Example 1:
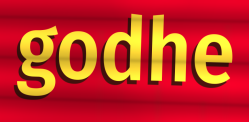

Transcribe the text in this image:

godhe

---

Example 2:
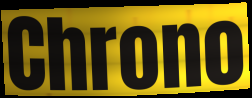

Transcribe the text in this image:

Chrono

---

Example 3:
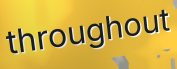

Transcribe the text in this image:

throughout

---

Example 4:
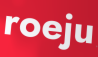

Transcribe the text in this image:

roeju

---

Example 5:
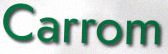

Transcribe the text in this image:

Carrom